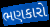
ભણકારો